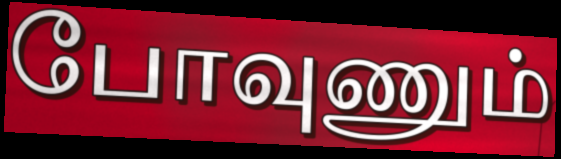
போவுணும்